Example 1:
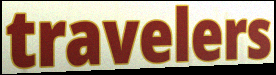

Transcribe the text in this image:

travelers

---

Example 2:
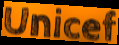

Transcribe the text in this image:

Unicef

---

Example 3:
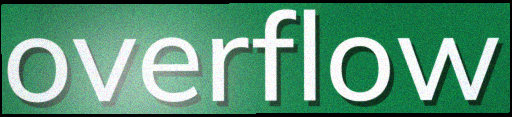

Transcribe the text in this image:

overflow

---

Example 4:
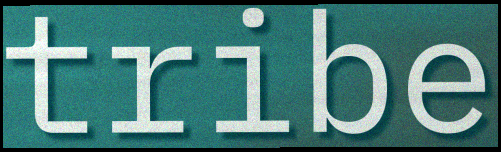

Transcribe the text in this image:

tribe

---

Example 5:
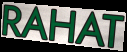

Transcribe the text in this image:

RAHAT